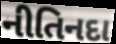
નીતિનદા